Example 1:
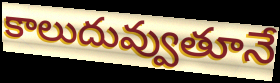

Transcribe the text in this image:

కాలుదువ్వుతూనే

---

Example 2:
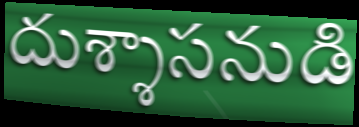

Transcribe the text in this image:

దుశ్శాసనుడి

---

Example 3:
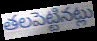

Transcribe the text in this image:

తలపెట్టినట్లు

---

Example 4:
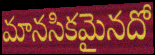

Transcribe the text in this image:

మానసికమైనదో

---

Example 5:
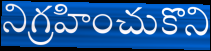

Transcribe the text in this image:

నిగ్రహించుకొని